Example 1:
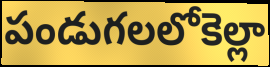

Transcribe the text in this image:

పండుగలలోకెల్లా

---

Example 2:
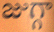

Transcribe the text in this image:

జుగ్గా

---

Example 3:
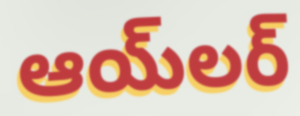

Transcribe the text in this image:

ఆయ్‌లర్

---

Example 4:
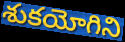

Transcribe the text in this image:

శుకయోగిని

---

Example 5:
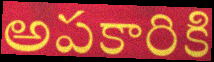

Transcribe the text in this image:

అపకారికి